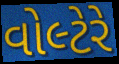
વોલ્ટેરે